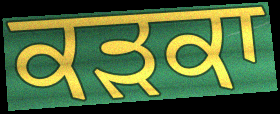
ਕੜਕਾ